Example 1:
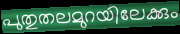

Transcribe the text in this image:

പുതുതലമുറയിലേക്കും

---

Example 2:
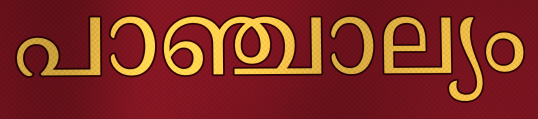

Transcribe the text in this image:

പാഞ്ചാല്യം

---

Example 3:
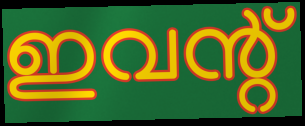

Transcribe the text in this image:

ഇവന്റ്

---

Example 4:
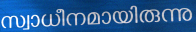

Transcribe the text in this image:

സ്വാധീനമായിരുന്നു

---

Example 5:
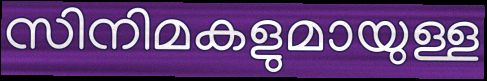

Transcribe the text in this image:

സിനിമകളുമായുള്ള